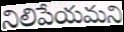
నిలిపేయమని